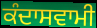
ਕੰਦਾਸਵਾਮੀ